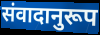
संवादानुरूप